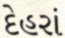
દેહરાં